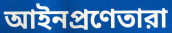
আইনপ্রণেতারা